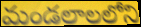
మండలాలలోని